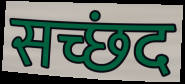
सच्छंद